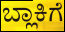
ಬ್ಲಾಕಿಗೆ